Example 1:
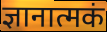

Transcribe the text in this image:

ज्ञानात्मकं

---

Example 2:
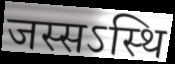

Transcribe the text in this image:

जस्सऽस्थि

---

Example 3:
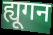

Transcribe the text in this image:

ह्यूगन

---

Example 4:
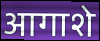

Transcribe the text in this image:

आगाशे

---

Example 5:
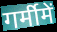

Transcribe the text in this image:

गर्मीमें